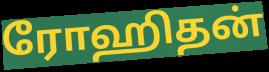
ரோஹிதன்